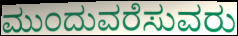
ಮುಂದುವರೆಸುವರು